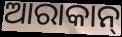
ଆରାକାନ୍